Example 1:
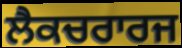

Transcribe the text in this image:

ਲੈਕਚਰਾਰਜ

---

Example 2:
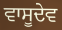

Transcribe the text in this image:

ਵਾਸੂਦੇਵ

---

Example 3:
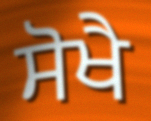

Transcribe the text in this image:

ਸੋਖੈ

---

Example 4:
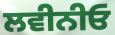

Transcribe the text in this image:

ਲਵੀਨੀਓ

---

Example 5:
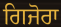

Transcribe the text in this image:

ਗਿਜੋਰਾ